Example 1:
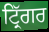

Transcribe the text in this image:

ਟ੍ਰਿੱਗਰ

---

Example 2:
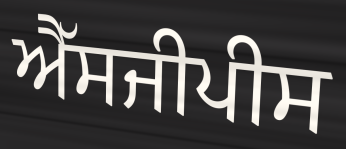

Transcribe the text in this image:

ਐੱਸਜੀਪੀਸ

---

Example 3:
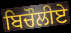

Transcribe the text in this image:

ਬਿਚੌਲੀਏ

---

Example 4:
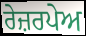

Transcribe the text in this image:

ਰੇਜ਼ਰਪੇਅ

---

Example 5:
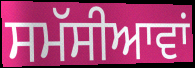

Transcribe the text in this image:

ਸਮੱਸੀਆਵਾਂ